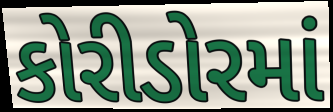
કોરીડોરમાં